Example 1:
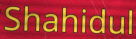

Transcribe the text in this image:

Shahidul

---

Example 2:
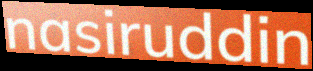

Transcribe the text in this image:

nasiruddin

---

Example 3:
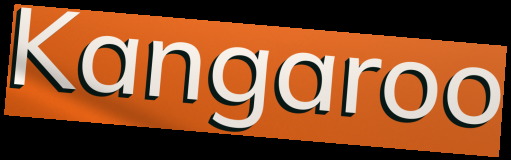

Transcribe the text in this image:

Kangaroo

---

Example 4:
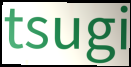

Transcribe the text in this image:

tsugi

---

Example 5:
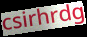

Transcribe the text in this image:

csirhrdg